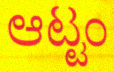
ಆಟ್ಟಂ